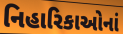
નિહારિકાઓનાં